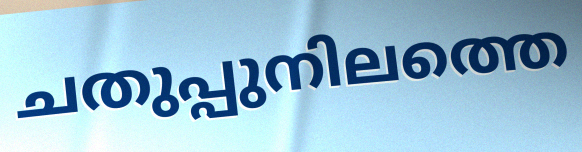
ചതുപ്പുനിലത്തെ